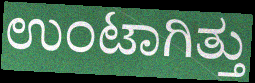
ಉಂಟಾಗಿತ್ತು